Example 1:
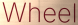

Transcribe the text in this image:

Wheel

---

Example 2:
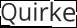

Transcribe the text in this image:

Quirke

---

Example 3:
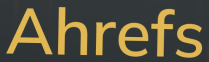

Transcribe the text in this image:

Ahrefs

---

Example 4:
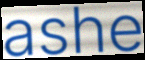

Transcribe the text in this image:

ashe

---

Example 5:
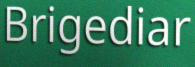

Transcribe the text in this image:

Brigediar